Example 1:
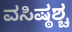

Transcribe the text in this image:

ವಸಿಷ್ಠಶ್ಚ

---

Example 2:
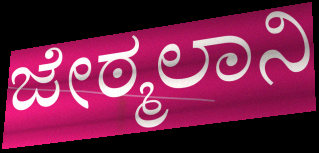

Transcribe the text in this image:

ಜೇಠ್ಮಲಾನಿ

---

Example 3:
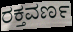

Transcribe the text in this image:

ರಕ್ತವರ್ಣ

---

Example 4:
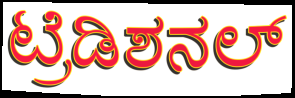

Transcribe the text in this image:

ಟ್ರೆಡಿಶನಲ್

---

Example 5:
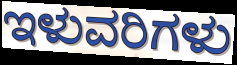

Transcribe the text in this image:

ಇಳುವರಿಗಳು